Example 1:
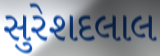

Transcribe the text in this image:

સુરેશદલાલ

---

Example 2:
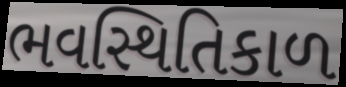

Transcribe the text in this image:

ભવસ્થિતિકાળ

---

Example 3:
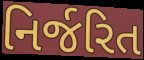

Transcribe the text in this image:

નિર્જરિત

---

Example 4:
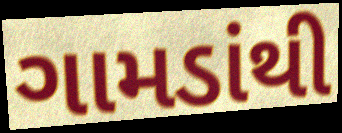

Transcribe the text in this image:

ગામડાંથી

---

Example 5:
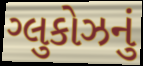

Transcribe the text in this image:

ગ્લુકોઝનું